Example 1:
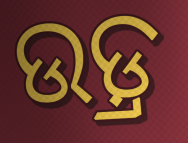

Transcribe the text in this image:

ଉଡ଼୍ର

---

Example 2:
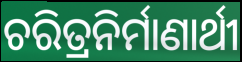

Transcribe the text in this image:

ଚରିତ୍ରନିର୍ମାଣାର୍ଥୀ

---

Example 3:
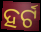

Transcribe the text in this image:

ହର୍ଟ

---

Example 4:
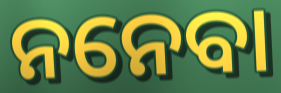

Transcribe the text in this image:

ନନେବା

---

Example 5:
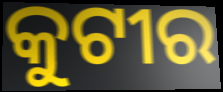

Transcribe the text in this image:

କୁଟୀର